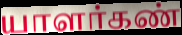
யாளர்கண்